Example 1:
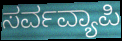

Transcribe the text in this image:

ಸರ್ವವ್ಯಾಪಿ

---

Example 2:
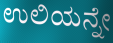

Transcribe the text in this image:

ಉಲಿಯನ್ನೇ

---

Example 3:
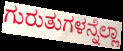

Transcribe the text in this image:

ಗುರುತುಗಳನ್ನೆಲ್ಲಾ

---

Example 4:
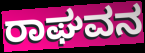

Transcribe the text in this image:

ರಾಘವನ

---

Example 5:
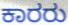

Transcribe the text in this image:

ಕಾರರು